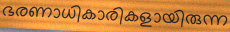
ഭരണാധികാരികളായിരുന്ന